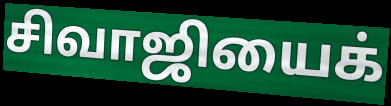
சிவாஜியைக்